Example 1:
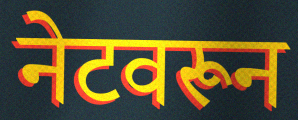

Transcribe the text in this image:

नेटवरून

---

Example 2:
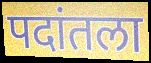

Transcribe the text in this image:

पदांतला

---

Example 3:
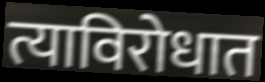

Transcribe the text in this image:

त्याविरोधात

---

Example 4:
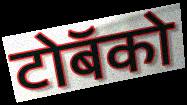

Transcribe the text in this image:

टोबॅको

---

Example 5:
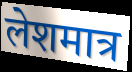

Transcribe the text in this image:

लेशमात्र